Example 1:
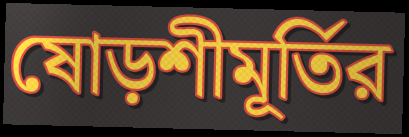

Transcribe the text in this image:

ষোড়শীমূর্তির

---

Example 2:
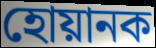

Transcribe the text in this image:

হোয়ানক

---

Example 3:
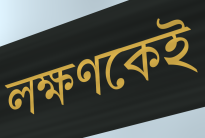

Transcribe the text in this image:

লক্ষণকেই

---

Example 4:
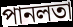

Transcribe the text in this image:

পানলতা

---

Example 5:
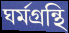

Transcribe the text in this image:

ঘর্মগ্রন্থি